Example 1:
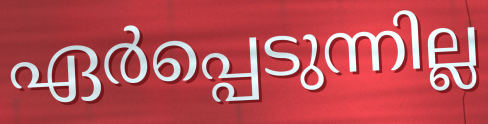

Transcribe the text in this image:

ഏർപ്പെടുന്നില്ല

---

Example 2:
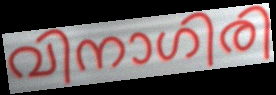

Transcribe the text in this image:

വിനാഗിരി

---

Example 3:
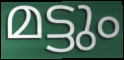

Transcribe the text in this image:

മട്ടും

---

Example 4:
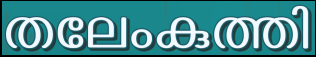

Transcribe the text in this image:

തലേംകുത്തി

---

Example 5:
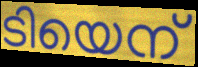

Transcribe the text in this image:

ടിയെന്